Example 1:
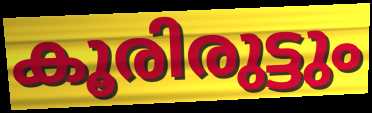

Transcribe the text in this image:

കൂരിരുട്ടും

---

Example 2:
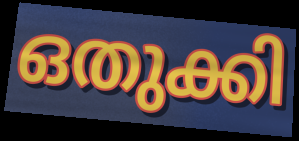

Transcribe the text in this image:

ഒതുക്കി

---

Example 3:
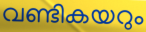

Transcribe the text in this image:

വണ്ടികയറും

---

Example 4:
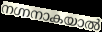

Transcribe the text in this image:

നഗ്നനാകയാൽ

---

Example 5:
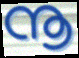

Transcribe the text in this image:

നൂ